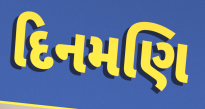
દિનમણિ